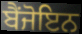
ਬੈਂਜੋਇਨ